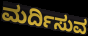
ಮರ್ದಿಸುವ